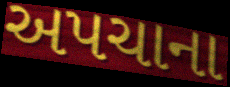
અપચાના